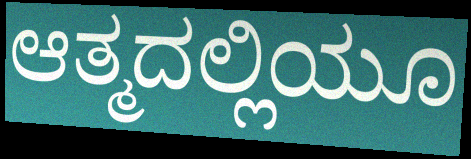
ಆತ್ಮದಲ್ಲಿಯೂ